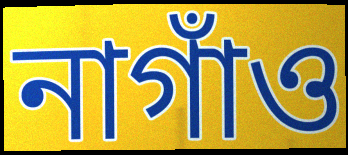
নাগাঁও